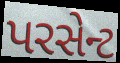
પરસેન્ટ